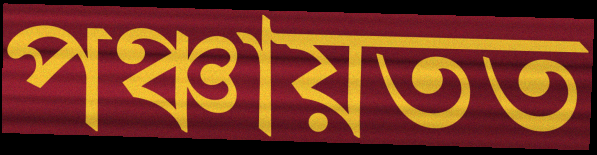
পঞ্চায়তত